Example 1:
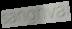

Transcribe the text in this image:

sanghvai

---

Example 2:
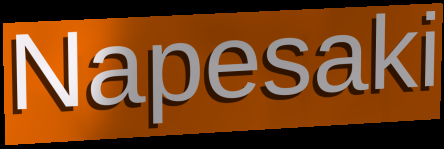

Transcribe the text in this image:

Napesaki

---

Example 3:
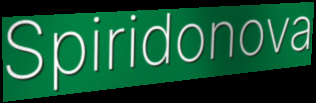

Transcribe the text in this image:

Spiridonova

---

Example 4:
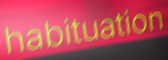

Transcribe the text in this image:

habituation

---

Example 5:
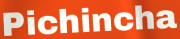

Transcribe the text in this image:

Pichincha